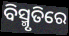
ବିସ୍ମୃତିରେ